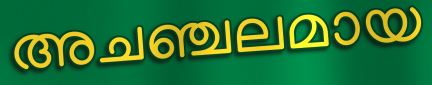
അചഞ്ചലമായ